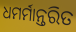
ଧମର୍ମାନ୍ତରିତ